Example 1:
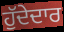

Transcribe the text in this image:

ਹੁੱਦੇਦਾਰ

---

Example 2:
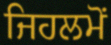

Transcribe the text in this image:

ਜਿਹਲਮੋਂ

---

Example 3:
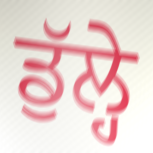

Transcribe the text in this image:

ਡੁੱਲ੍ਹੇ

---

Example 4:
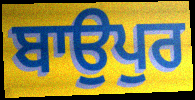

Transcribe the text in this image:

ਬਾਉਪੁਰ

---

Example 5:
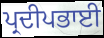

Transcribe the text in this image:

ਪ੍ਰਦੀਪਭਾਈ